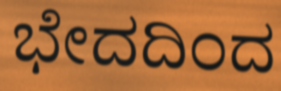
ಭೇದದಿಂದ